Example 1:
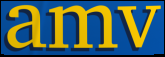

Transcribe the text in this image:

amv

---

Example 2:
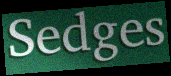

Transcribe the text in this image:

Sedges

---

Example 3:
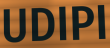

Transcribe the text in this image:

UDIPI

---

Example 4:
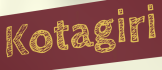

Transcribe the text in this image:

Kotagiri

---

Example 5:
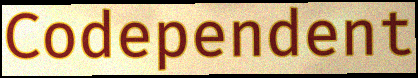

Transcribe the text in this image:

Codependent